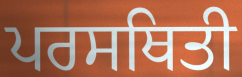
ਪਰਸਥਿਤੀ